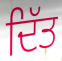
ਦਿੱਤ